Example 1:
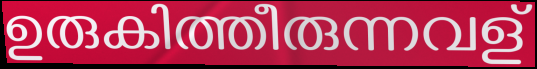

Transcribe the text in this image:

ഉരുകിത്തീരുന്നവള്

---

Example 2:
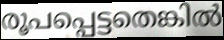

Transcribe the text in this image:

രൂപപ്പെട്ടതെങ്കിൽ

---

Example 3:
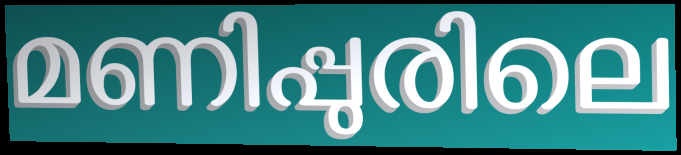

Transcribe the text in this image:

മണിപ്പുരിലെ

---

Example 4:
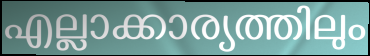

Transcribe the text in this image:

എല്ലാക്കാര്യത്തിലും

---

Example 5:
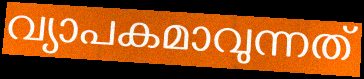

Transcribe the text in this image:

വ്യാപകമാവുന്നത്